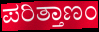
ಪರಿತ್ತಾಣಂ